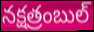
నక్షత్రంబుల్